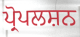
ਪ੍ਰੋਪਲਸ਼ਨ